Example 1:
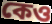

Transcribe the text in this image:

কেও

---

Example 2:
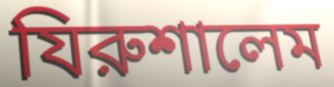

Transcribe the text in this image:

যিরুশালেম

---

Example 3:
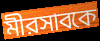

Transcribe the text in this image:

মীরসাবকে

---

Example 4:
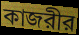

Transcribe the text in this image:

কাজরীর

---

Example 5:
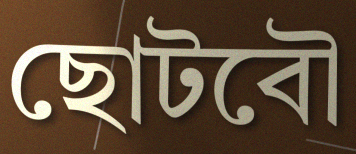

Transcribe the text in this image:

ছোটবৌ